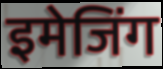
इमेजिंग